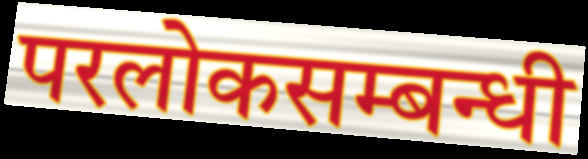
परलोकसम्बन्धी